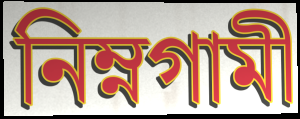
নিম্নগামী